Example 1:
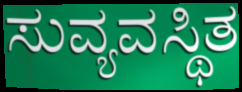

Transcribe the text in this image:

ಸುವ್ಯವಸ್ಥಿತ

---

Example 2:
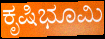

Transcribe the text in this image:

ಕೃಷಿಭೂಮಿ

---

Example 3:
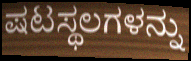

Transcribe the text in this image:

ಷಟಸ್ಥಲಗಳನ್ನು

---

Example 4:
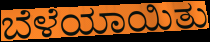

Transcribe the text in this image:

ಬೆಳೆಯಾಯಿತು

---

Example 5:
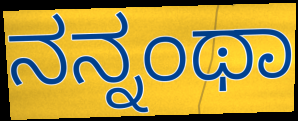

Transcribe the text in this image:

ನನ್ನಂಥಾ